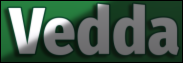
Vedda